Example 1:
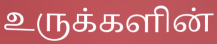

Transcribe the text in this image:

உருக்களின்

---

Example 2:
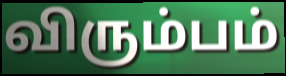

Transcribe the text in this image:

விரும்பம்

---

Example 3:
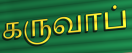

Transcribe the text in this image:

கருவாப்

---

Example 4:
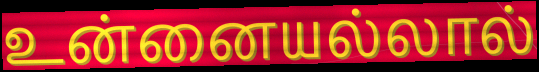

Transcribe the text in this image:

உன்னையல்லால்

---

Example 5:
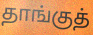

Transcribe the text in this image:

தாங்குத்